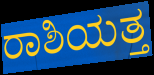
ರಾಶಿಯತ್ತ